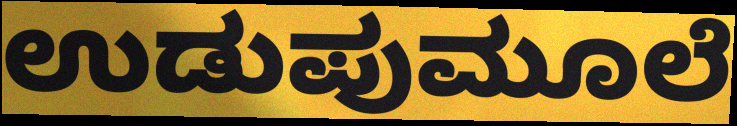
ಉಡುಪುಮೂಲೆ